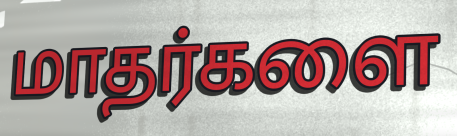
மாதர்களை